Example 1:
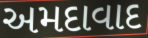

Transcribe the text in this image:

અમદાવાદ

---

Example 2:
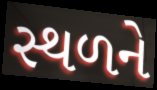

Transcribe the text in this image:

સ્થળને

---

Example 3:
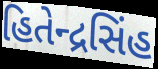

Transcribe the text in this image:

હિતેન્દ્રસિંહ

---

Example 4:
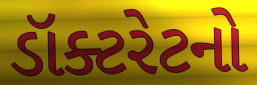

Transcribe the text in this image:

ડૉક્ટરેટનો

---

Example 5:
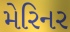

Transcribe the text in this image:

મેરિનર